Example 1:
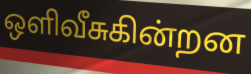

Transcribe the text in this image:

ஒளிவீசுகின்றன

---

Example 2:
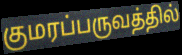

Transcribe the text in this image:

குமரப்பருவத்தில்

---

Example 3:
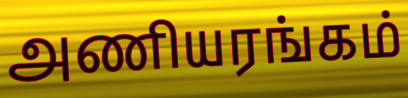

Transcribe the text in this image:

அணியரங்கம்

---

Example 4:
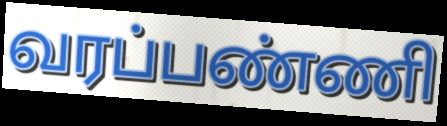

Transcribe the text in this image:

வரப்பண்ணி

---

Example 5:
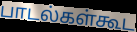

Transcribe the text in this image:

பாடல்கள்கூட